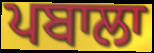
ਪਬਾਲਾ